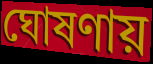
ঘোষণায়